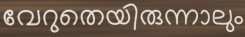
വേറുതെയിരുന്നാലും